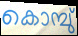
കൊമ്പു്